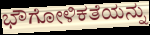
ಭೌಗೋಳಿಕತೆಯನ್ನು